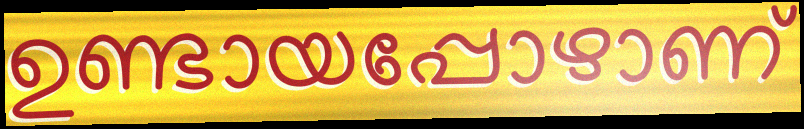
ഉണ്ടായപ്പോഴാണ്